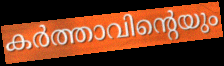
കർത്താവിന്റെയും